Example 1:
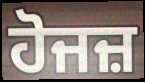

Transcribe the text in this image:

ਹੋਜਜ਼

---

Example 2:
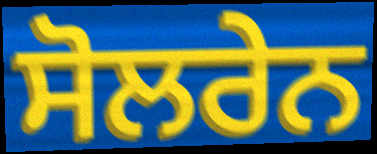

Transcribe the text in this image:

ਸੋਲਰੇਨ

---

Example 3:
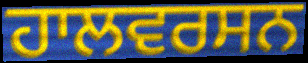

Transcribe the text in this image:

ਹਾਲਵਰਸਨ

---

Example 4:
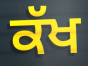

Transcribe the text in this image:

ਕੱਖ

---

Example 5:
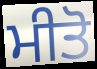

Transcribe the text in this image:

ਮੀਤੋ